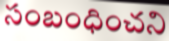
సంబంధించని